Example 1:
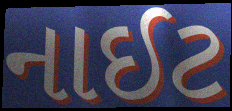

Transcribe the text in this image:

નાઈટ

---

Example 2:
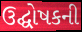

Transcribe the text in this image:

ઉદ્ઘોષકની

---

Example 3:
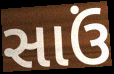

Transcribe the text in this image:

સાઉં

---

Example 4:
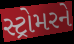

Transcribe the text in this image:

સ્ટ્રોમરને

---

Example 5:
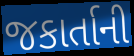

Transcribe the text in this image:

જકાર્તાની